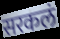
सरकलं